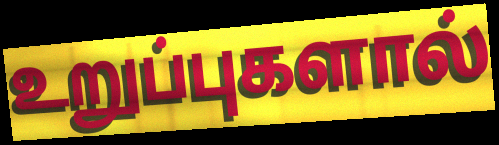
உறுப்புகளால்